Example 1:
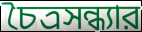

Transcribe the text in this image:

চৈত্রসন্ধ্যার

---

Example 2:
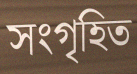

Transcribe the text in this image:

সংগৃহিত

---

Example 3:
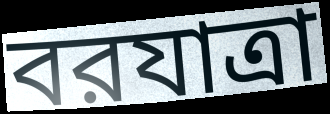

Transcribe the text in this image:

বরযাত্রা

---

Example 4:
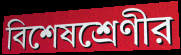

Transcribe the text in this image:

বিশেষশ্রেণীর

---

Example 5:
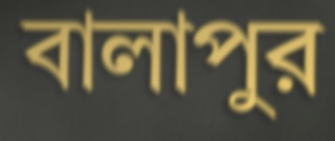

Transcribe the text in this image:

বালাপুর